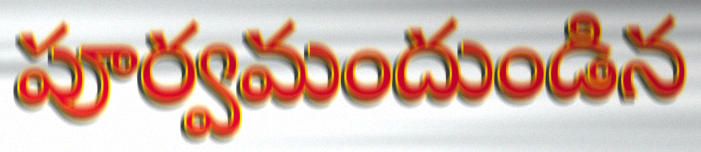
పూర్వమందుండిన